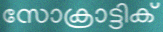
സോക്രാട്ടിക്